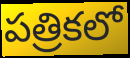
పత్రికలో